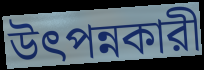
উৎপন্নকারী